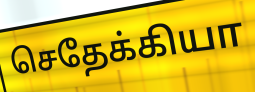
செதேக்கியா